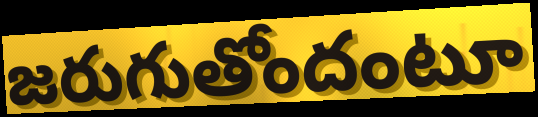
జరుగుతోందంటూ